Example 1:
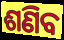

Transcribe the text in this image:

ଶଣିବ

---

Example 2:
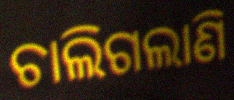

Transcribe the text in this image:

ଚାଲିଗଲାଣି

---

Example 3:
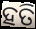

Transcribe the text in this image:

ହତି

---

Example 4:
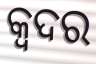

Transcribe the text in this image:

କ୍ୱଦର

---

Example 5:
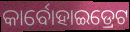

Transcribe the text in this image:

କାର୍ବୋହାଇଡ୍ରେଟ